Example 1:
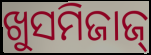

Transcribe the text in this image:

ଖୁସମିଜାଜ୍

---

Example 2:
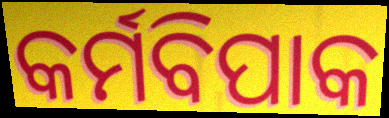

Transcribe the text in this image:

କର୍ମବିପାକ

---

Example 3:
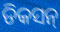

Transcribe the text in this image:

ଡିକସନ୍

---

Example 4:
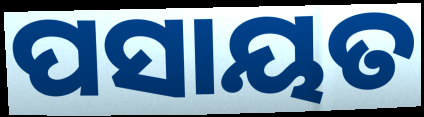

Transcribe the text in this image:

ପସାୟତ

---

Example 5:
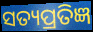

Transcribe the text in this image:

ସତ୍ୟପ୍ରତିଜ୍ଞ